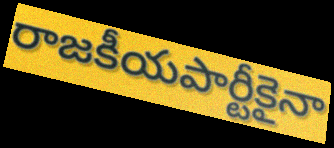
రాజకీయపార్టీకైనా